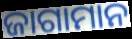
ଜାଗାମାନ